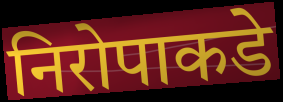
निरोपाकडे